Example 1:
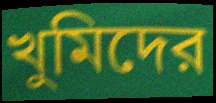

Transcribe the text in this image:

খুমিদের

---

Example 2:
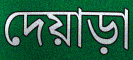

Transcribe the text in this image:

দেয়াড়া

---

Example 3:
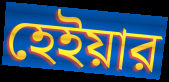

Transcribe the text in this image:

হেইয়ার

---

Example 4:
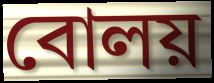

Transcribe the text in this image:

বোলয়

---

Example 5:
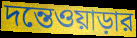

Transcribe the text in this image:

দন্তেওয়াড়ার